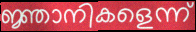
ജ്ഞാനികളെന്ന്